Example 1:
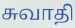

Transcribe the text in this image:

சுவாதி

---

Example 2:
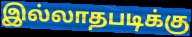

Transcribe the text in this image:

இல்லாதபடிக்கு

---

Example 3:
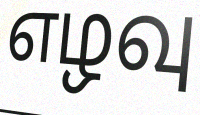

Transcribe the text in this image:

எழவு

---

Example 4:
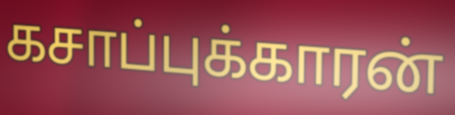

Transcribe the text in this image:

கசாப்புக்காரன்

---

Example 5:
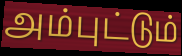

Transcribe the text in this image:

அம்புட்டும்